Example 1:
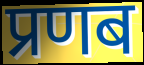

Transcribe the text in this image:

प्रणब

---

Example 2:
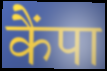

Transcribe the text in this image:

कैंपा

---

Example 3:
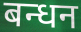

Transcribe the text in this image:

बन्धन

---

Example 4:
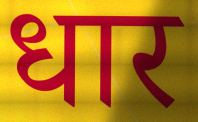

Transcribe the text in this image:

धार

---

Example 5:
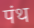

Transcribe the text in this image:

पंथ